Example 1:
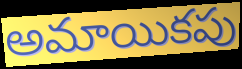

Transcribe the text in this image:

అమాయికపు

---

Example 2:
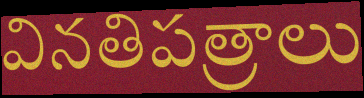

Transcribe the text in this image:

వినతిపత్రాలు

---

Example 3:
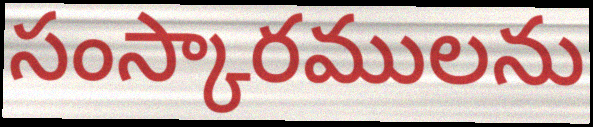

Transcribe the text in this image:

సంస్కారములను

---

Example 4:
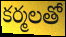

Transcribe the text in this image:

కర్మలతో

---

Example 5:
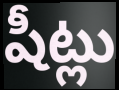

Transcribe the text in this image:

షీట్లు